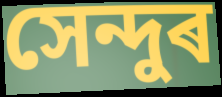
সেন্দুৰ